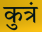
कुत्रं